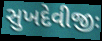
સુખદેવીજીઃ